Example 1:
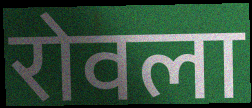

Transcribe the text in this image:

रोवला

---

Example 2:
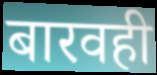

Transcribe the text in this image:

बारवही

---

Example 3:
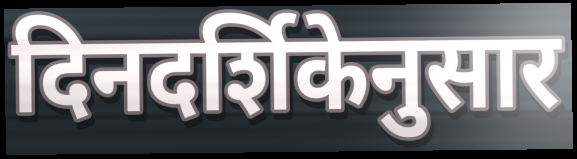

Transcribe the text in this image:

दिनदर्शिकेनुसार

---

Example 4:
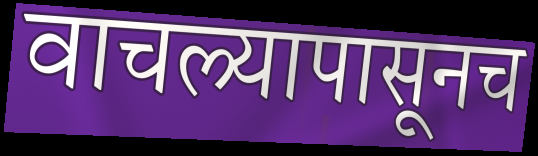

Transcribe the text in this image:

वाचल्यापासूनच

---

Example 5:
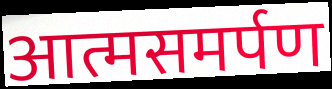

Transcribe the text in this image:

आत्मसमर्पण